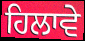
ਹਿਲਾਵੇ